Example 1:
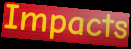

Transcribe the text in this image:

Impacts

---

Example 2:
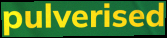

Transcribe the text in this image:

pulverised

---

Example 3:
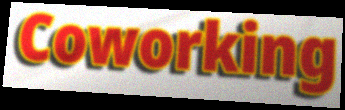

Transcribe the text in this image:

Coworking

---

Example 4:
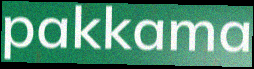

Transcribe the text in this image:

pakkama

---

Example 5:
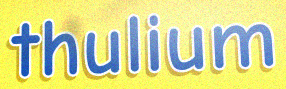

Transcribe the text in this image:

thulium